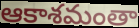
ఆకాశమంతా